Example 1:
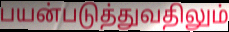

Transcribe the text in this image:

பயன்படுத்துவதிலும்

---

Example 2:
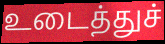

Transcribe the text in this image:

உடைத்துச்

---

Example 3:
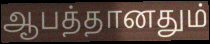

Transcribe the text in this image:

ஆபத்தானதும்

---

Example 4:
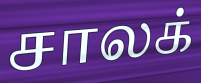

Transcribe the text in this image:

சாலக்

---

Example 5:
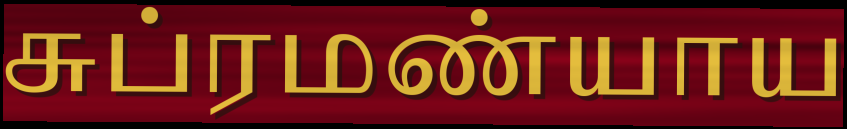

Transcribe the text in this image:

சுப்ரமண்யாய